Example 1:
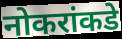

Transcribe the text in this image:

नोकरांकडे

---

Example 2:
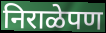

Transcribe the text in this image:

निराळेपण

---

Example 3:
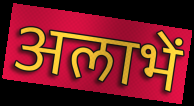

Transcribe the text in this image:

अलाभें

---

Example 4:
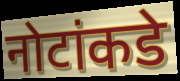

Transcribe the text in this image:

नोटांकडे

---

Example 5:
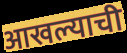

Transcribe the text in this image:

आखल्याची